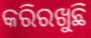
କରିରଖୁଛି